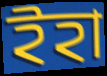
ইহা